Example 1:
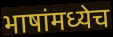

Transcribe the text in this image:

भाषांमध्येच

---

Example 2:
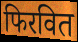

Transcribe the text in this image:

फिरवित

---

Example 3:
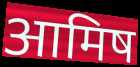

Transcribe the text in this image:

आमिष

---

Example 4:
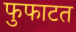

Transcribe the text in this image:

फुफाटत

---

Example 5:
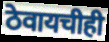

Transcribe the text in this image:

ठेवायचीही